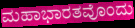
ಮಹಾಭಾರತವೊಂದು